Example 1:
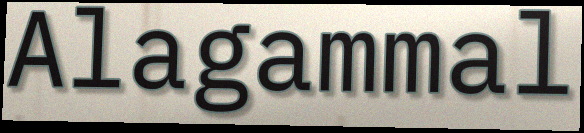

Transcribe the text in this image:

Alagammal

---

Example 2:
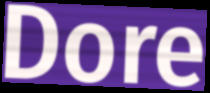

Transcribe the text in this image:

Dore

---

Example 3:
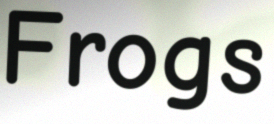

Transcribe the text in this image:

Frogs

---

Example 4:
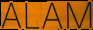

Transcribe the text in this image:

ALAM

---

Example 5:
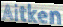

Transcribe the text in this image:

Aitken